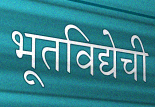
भूतविद्येची